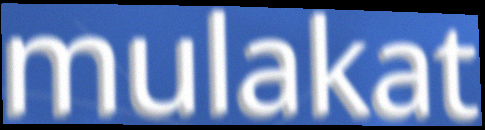
mulakat